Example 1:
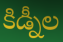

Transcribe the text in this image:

కిడ్నీల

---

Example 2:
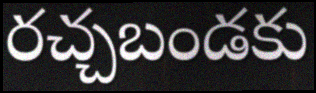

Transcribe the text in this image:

రచ్చబండకు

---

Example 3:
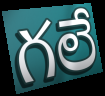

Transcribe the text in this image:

గలే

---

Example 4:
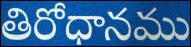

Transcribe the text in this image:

తిరోధానము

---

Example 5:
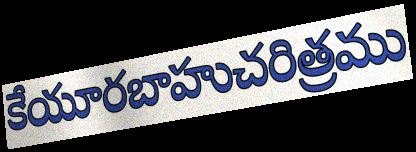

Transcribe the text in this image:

కేయూరబాహుచరిత్రము